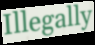
Illegally